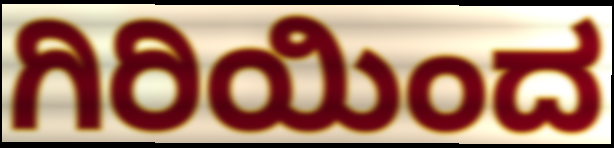
ಗಿರಿಯಿಂದ